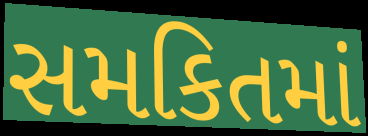
સમકિતમાં